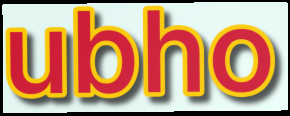
ubho